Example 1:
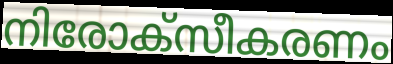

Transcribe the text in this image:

നിരോക്സീകരണം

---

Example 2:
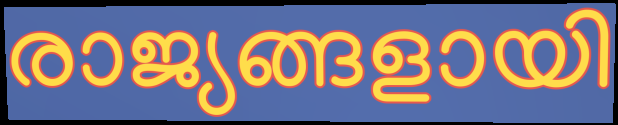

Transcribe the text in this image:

രാജ്യങ്ങളായി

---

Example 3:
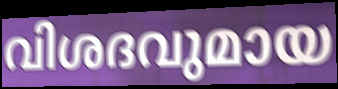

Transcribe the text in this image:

വിശദവുമായ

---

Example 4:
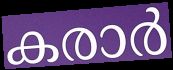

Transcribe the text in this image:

കരാർ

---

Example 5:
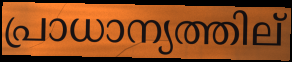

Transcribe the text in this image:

പ്രാധാന്യത്തില്